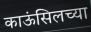
काऊंसिलच्या